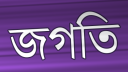
জগতি